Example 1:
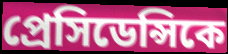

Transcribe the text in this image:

প্রেসিডেন্সিকে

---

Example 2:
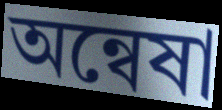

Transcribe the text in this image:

অন্বেষা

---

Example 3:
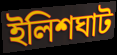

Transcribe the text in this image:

ইলিশঘাট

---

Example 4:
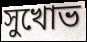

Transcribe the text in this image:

সুখোভ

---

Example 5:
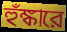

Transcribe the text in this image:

হুঁঙ্কারে